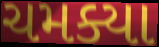
ચમક્યા